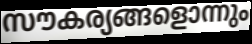
സൗകര്യങ്ങളൊന്നും